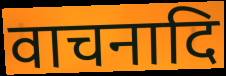
वाचनादि